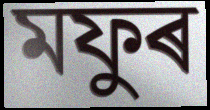
মফুৰ